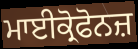
ਮਾਈਕ੍ਰੋਫੋਨਜ਼